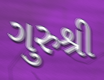
ગુરુશ્રી